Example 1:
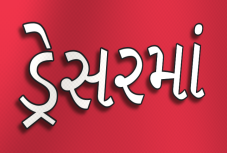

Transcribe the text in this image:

ડ્રેસરમાં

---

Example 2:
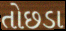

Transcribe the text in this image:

તોછડા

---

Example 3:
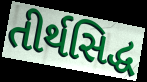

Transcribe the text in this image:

તીર્થસિદ્ધ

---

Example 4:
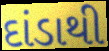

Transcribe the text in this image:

દાંડાથી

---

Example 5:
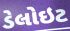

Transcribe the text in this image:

ડેલોઇટ